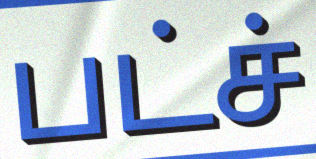
பட்ச்